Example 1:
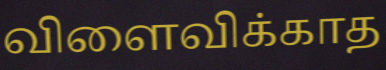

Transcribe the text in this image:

விளைவிக்காத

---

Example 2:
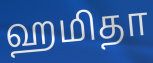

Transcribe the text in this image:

ஹமிதா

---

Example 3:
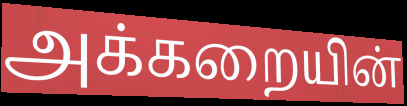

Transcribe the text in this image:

அக்கறையின்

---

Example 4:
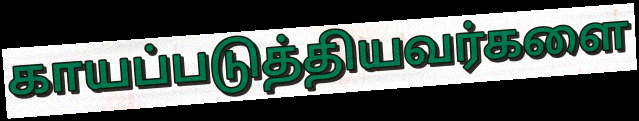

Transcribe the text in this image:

காயப்படுத்தியவர்களை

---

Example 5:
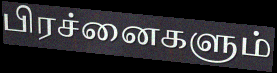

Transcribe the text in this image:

பிரச்னைகளும்